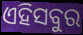
ଏହିସବୁର